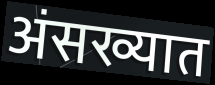
अंसख्यात